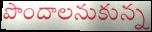
పొందాలనుకున్న